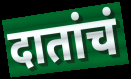
दातांचं